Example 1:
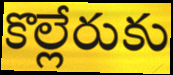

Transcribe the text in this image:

కొల్లేరుకు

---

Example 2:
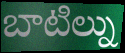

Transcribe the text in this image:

బాటిల్ను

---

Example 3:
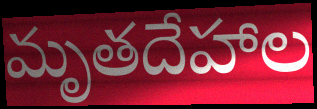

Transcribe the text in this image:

మృతదేహాల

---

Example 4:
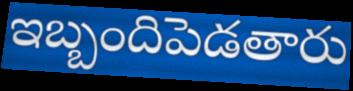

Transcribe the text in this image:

ఇబ్బందిపెడతారు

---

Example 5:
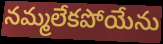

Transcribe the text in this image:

నమ్మలేకపోయేను